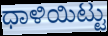
ಧಾಳಿಯಿಟ್ಟು